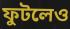
ফুটলেও